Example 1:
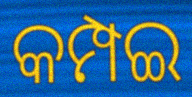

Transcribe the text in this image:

କମ୍ପଇ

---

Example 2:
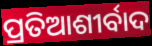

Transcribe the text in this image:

ପ୍ରତିଆଶୀର୍ବାଦ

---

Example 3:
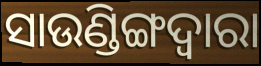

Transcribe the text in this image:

ସାଉଣ୍ଡିଙ୍ଗଦ୍ୱାରା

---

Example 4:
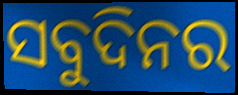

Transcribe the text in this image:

ସବୁଦିନର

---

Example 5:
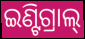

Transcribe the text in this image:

ଇଣ୍ଟିଗ୍ରାଲ୍